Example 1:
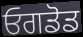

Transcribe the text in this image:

ਓਗਡੋਡ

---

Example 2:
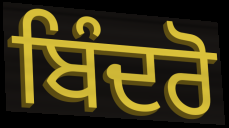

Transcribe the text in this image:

ਬਿੰਦਰੋ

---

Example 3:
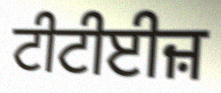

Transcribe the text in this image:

ਟੀਟੀਈਜ਼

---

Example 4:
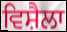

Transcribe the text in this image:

ਵਿਸ਼ੈਲਾ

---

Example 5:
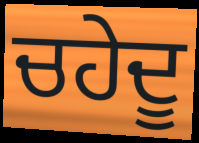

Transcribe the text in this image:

ਚਹੇਦੂ